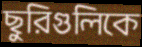
ছুরিগুলিকে